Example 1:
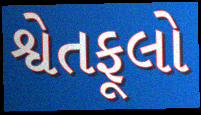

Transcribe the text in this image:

શ્વેતફૂલો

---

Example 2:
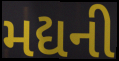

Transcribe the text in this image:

મદ્યની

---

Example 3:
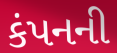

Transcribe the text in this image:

કંપનની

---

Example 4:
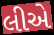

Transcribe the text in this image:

લીએ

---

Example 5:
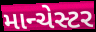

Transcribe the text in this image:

માન્ચેસ્ટર